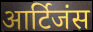
आर्टिजंस